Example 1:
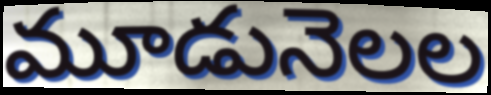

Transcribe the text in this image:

మూడునెలల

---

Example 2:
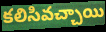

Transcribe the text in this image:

కలిసివచ్చాయి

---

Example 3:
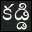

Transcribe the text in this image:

కడ్డి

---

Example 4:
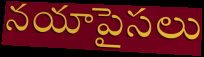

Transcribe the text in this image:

నయాపైసలు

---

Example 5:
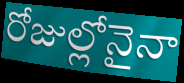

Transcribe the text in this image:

రోజుల్లోనైనా